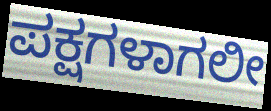
ಪಕ್ಷಗಳಾಗಲೀ